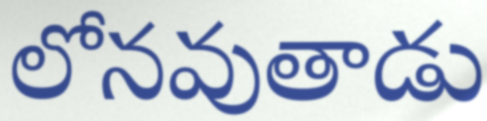
లోనవుతాడు